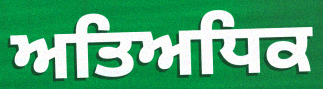
ਅਤਿਅਧਿਕ